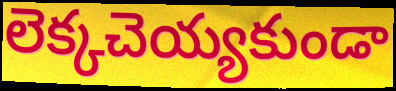
లెక్కచెయ్యకుండా